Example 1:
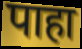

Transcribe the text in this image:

पाहा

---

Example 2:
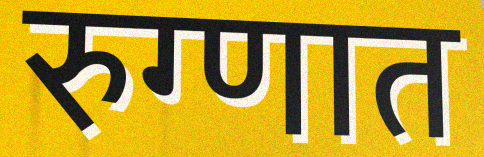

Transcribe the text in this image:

रुग्णात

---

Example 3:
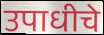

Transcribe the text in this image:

उपाधीचे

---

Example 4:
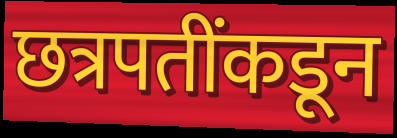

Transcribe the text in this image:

छत्रपतींकडून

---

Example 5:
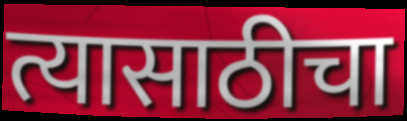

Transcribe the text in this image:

त्यासाठीचा